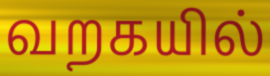
வறகயில்